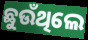
ଛୁଉଁଥିଲେ